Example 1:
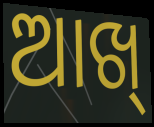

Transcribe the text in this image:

ଆଖ୍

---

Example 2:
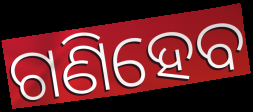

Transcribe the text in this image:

ଗଣିହେବ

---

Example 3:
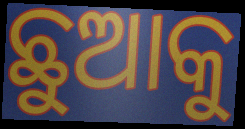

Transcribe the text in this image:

ଛୁଆକୁ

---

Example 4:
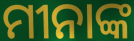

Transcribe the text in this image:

ମୀନାଙ୍କ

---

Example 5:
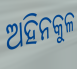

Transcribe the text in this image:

ଅହିନକୁଳ